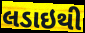
લડાઇથી